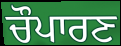
ਚੌਪਾਰਣ